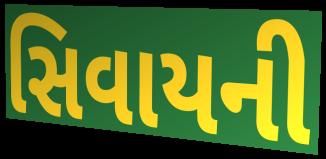
સિવાયની